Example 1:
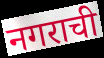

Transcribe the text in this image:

नगराची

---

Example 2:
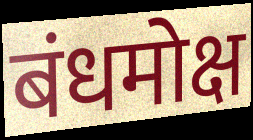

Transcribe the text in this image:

बंधमोक्ष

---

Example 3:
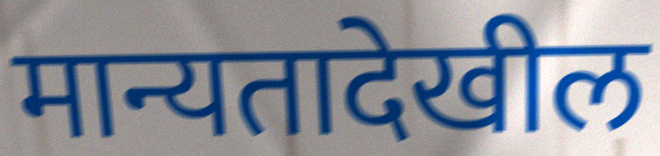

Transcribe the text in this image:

मान्यतादेखील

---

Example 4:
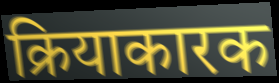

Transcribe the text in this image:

क्रियाकारक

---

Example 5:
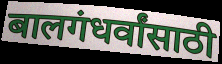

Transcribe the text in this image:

बालगंधर्वांसाठी